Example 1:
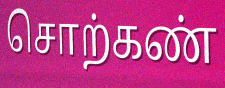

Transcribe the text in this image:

சொற்கண்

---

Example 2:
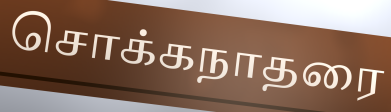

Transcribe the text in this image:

சொக்கநாதரை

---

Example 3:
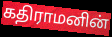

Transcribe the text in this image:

கதிராமனின்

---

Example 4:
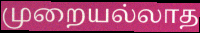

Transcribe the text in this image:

முறையல்லாத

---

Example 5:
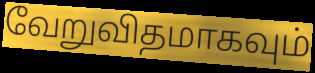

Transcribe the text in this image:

வேறுவிதமாகவும்